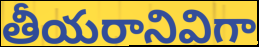
తీయరానివిగా